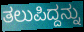
ತಲುಪಿದ್ದನ್ನು